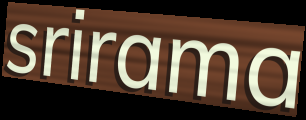
srirama